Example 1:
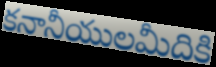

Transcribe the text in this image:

కనానీయులమీదికి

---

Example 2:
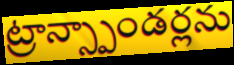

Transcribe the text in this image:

ట్రాన్స్పాండర్లను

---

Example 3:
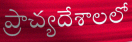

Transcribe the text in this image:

ప్రాచ్యదేశాలలో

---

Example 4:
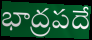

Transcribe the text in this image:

భాద్రపదే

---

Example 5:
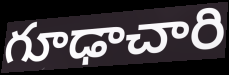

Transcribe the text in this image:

గూఢాచారి